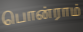
பொன்ராம்